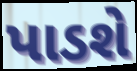
પાડશે